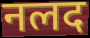
नलद